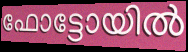
ഫോട്ടോയിൽ